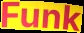
Funk